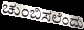
ಚುಂಬಿಸಲೆಂದು